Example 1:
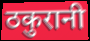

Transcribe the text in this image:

ठकुरानी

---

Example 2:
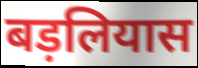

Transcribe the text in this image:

बड़लियास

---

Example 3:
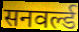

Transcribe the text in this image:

सनवर्ल्ड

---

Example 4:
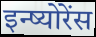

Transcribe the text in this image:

इन्ष्योरेंस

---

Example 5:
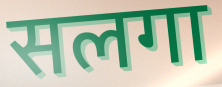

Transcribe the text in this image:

सलगा